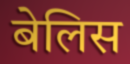
बेलिस